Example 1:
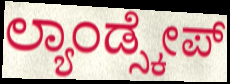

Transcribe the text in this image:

ಲ್ಯಾಂಡ್ಸ್ಕೇಪ್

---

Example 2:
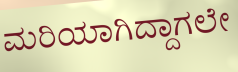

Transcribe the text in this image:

ಮರಿಯಾಗಿದ್ದಾಗಲೇ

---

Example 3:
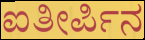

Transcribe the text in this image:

ಐತೀರ್ಪಿನ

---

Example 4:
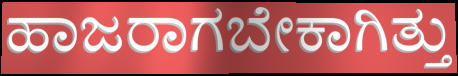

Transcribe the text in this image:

ಹಾಜರಾಗಬೇಕಾಗಿತ್ತು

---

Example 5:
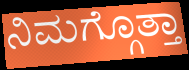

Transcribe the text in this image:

ನಿಮಗ್ಗೊತ್ತಾ